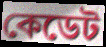
কেডেট